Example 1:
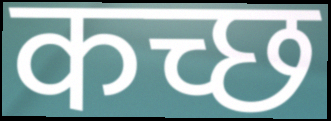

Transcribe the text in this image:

कच्छ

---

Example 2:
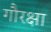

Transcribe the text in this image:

गौरक्षा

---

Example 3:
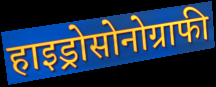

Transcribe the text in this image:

हाइड्रोसोनोग्राफी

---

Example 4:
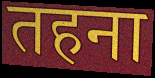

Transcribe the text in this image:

तहना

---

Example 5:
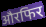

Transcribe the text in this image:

औरफिर